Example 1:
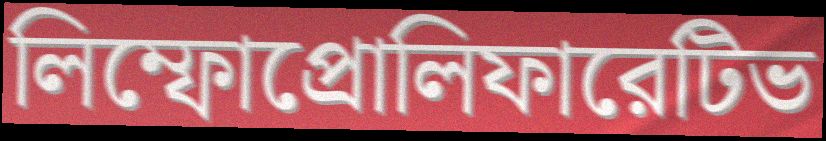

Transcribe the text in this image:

লিম্ফোপ্রোলিফারেটিভ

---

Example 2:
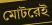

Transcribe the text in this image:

মোটরেই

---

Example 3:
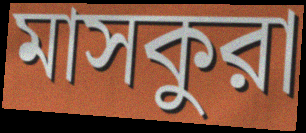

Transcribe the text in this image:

মাসকুরা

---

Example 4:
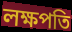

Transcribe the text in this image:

লক্ষপতি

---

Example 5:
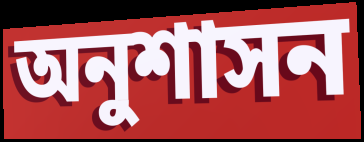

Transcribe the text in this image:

অনুশাসন